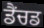
ਡੈਂਚਡ